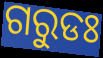
ଗରୁଡଃ